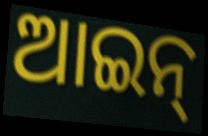
ଆଇନ୍